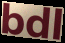
bdl